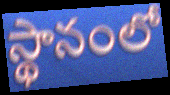
స్థానంలో